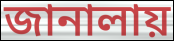
জানালায়